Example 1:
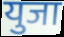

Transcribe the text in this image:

युजा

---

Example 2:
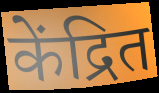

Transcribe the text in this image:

केंद्रित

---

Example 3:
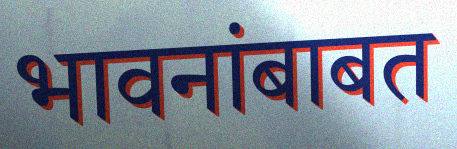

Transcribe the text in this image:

भावनांबाबत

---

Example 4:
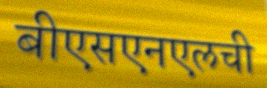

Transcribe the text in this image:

बीएसएनएलची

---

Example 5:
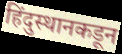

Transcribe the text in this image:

हिंदुस्थानकडून